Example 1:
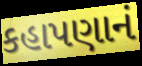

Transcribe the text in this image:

કહાપણાનં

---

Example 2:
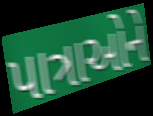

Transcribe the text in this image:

પાત્રાઓને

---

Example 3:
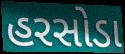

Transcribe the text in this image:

હરસોડા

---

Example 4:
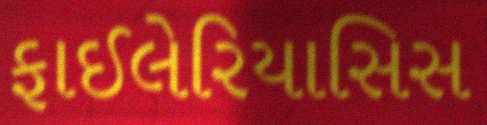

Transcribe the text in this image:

ફાઈલેરિયાસિસ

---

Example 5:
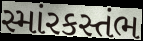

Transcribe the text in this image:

સ્માંરકસ્તંભ